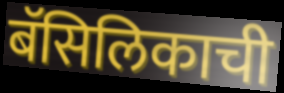
बॅसिलिकाची